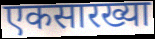
एकसारख्या